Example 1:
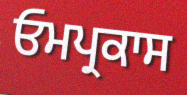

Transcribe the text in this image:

ਓਮਪ੍ਰਕਾਸ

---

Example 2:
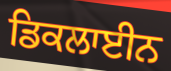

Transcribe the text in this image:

ਡਿਕਲਾਈਨ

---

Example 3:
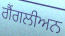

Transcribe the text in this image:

ਗੈਂਗਲੀਅਨ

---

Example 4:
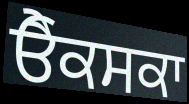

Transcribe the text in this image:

ਓੈਕਸਕਾ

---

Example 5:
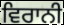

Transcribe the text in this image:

ਵਿਰਾਨੀ